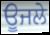
ਊਜਲੇ